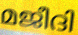
മജീദി